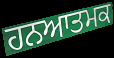
ਹਨਆਤਮਕ